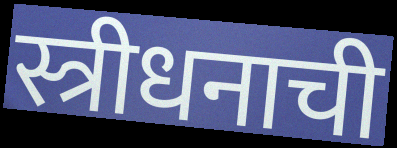
स्त्रीधनाची